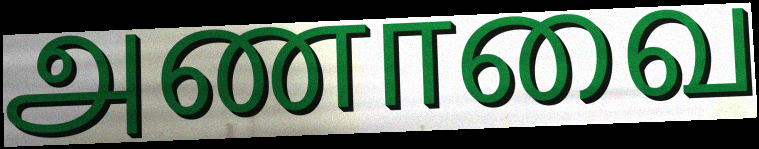
அணாவை